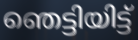
ഞെട്ടിയിട്ട്